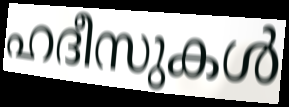
ഹദീസുകൾ